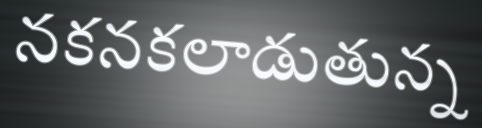
నకనకలాడుతున్న